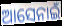
ଆସେନାଇଁ